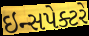
ઇન્સપેક્ટરે